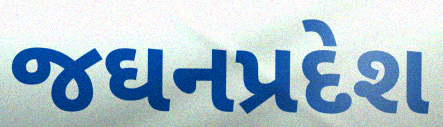
જઘનપ્રદેશ